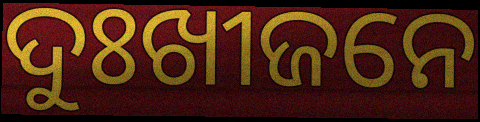
ଦୁଃଖୀଜନେ